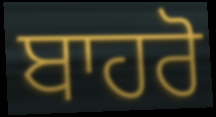
ਬਾਹਰੋ